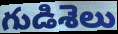
గుడిశెలు